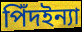
পিঁদইন্যা